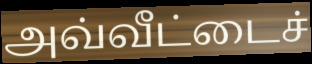
அவ்வீட்டைச்